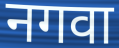
नगवा